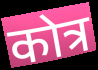
कोत्र